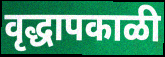
वृद्धापकाळी